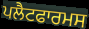
ਪਲੈਟਫਾਰਮਸ